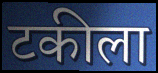
टकीला